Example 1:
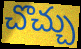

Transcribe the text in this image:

చొచ్చు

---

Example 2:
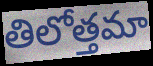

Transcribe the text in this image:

తిలోత్తమా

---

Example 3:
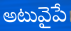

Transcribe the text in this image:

అటువైపే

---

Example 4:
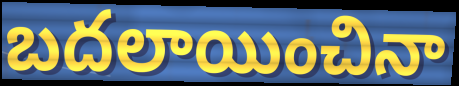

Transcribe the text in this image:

బదలాయించినా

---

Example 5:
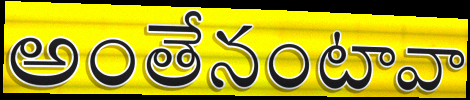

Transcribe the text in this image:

అంతేనంటావా